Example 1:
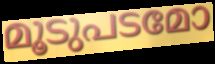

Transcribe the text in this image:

മൂടുപടമോ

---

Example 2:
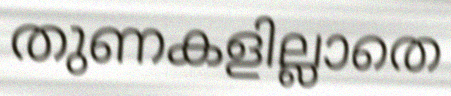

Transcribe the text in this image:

തുണകളില്ലാതെ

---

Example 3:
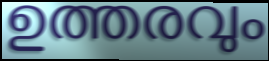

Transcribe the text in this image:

ഉത്തരവും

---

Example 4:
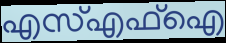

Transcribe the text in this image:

എസ്എഫ്ഐ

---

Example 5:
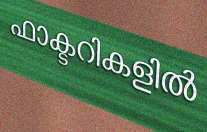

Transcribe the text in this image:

ഫാക്ടറികളിൽ